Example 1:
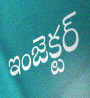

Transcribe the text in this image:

ఇంజెక్టర్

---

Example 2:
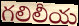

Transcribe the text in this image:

గలిలీయ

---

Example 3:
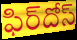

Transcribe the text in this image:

ఫిర్‌దోస్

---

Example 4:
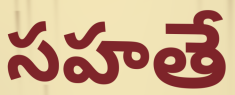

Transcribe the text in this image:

సహతే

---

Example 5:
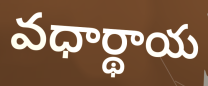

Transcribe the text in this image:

వధార్థాయ